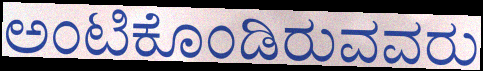
ಅಂಟಿಕೊಂಡಿರುವವರು